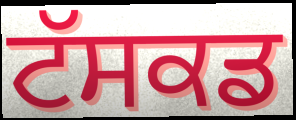
ਟੱਸਕਡ